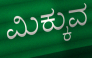
ಮಿಕ್ಕುವ